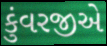
કુંવરજીએ